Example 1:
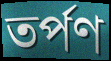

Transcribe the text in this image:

তৰ্পণ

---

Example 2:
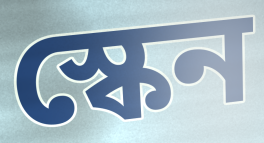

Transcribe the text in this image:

স্কেন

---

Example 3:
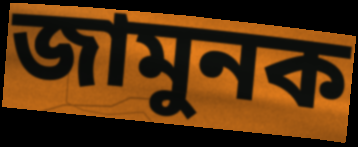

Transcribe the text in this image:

জামুনক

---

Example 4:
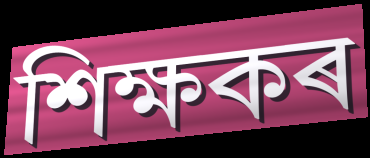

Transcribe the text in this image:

শিক্ষকৰ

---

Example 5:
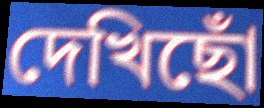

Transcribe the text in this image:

দেখিছোঁ